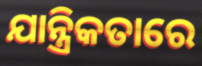
ଯାନ୍ତ୍ରିକତାରେ